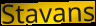
Stavans